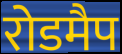
रोडमैप